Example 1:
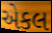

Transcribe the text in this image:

એકલ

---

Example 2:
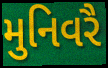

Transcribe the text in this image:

મુનિવરૈ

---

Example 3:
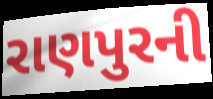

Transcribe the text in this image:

રાણપુરની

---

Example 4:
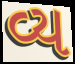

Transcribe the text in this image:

વ્ય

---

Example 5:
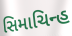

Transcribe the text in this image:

સિમાચિન્હ